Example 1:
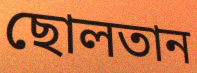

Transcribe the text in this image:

ছোলতান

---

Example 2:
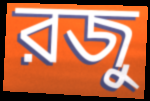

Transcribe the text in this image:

রজু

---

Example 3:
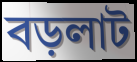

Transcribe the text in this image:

বড়লাট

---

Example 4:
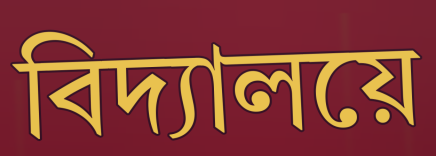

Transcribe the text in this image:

বিদ্যালয়ে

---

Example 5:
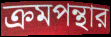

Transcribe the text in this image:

ক্রমপন্থার